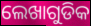
ଲେଖାଗୁଡିକ